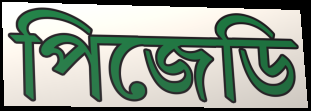
পিজেডি